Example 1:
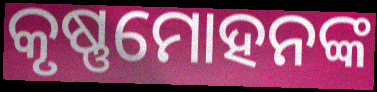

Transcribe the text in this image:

କୃଷ୍ଣମୋହନଙ୍କ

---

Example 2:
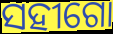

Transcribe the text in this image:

ସହୀଗୋ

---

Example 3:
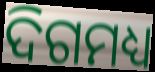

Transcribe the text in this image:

ଦିଗମଧ୍ୟ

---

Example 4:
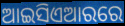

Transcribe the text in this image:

ଆଇସିଏଆରରେ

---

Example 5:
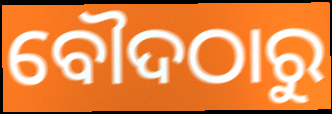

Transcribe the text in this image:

ବୌଦଠାରୁ